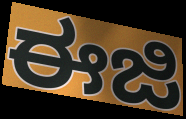
ಈಜಿ